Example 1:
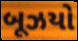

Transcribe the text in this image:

બૂઝયો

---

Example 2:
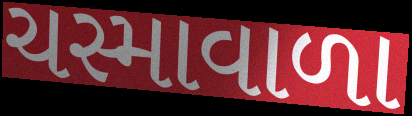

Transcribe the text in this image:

ચસ્માવાળા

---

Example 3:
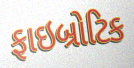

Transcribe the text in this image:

ફાઇબ્રોટિક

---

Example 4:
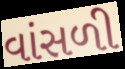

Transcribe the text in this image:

વાંસળી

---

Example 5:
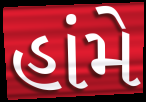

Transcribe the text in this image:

હાંમે